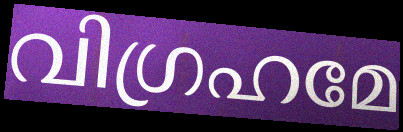
വിഗ്രഹമേ